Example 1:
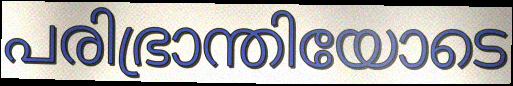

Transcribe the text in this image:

പരിഭ്രാന്തിയോടെ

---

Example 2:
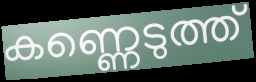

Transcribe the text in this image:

കണ്ണെടുത്ത്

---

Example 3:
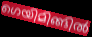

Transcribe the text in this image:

ഗെയിമിങ്ങിൽ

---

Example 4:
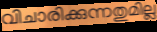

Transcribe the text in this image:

വിചാരിക്കുന്നതുമില്ല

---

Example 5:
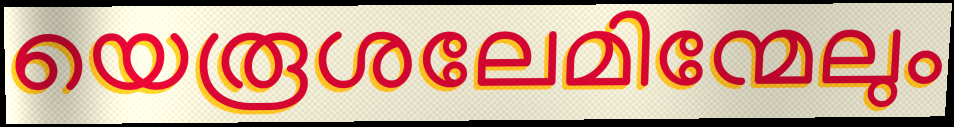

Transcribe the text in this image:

യെരൂശലേമിന്മേലും